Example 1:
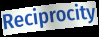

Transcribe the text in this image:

Reciprocity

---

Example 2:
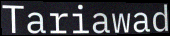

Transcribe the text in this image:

Tariawad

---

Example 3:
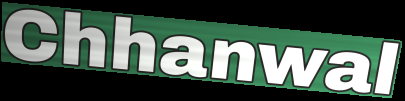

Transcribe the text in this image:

Chhanwal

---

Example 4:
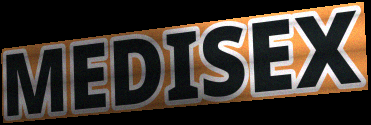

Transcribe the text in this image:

MEDISEX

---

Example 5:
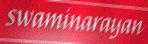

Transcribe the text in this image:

swaminarayan